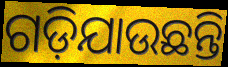
ଗଡ଼ିଯାଉଛନ୍ତି